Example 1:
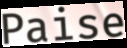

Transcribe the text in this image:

Paise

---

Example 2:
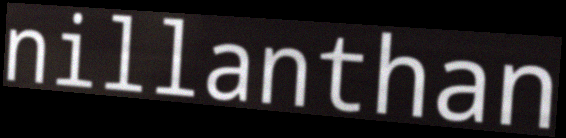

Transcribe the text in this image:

nillanthan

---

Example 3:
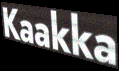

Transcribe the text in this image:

Kaakka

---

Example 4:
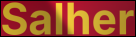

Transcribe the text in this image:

Salher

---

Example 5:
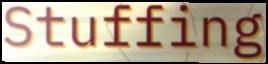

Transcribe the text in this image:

Stuffing